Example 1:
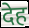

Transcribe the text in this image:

देह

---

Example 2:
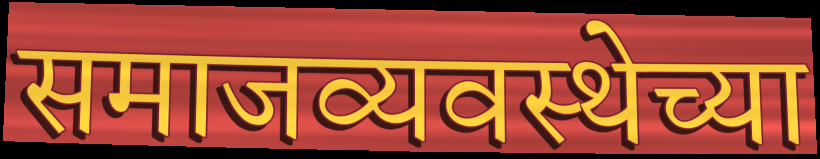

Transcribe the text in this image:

समाजव्यवस्थेच्या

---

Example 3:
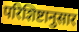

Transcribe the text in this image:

परिशिष्टानुसार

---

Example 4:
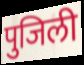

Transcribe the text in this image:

पुजिली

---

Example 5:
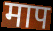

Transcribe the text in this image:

माप